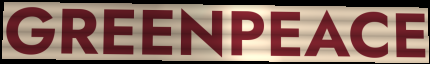
GREENPEACE